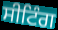
ਸੀਟਿੰਗ